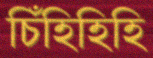
চিঁহিহিহি